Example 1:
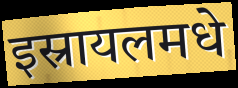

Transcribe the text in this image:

इस्रायलमधे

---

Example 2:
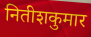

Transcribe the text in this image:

नितीशकुमार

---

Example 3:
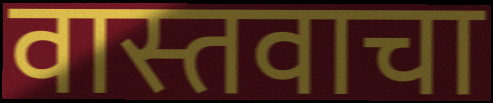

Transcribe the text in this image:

वास्तवाचा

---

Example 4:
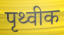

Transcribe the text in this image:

पृथ्वीक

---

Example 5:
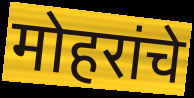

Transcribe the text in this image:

मोहरांचे